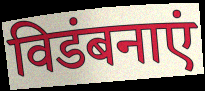
विडंबनाएं